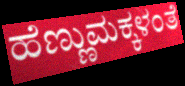
ಹೆಣ್ಣುಮಕ್ಕಳಂತೆ